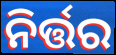
ନିର୍ତ୍ତର